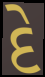
દે